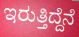
ಇರುತ್ತಿದ್ದೆನೆ